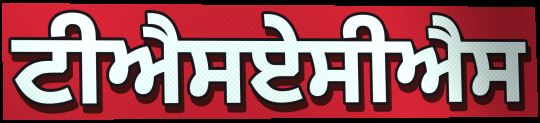
ਟੀਐਸਏਸੀਐਸ